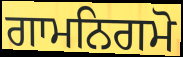
ਗਾਮਨਿਗਮੋ